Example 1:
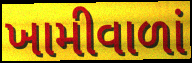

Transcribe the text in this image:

ખામીવાળાં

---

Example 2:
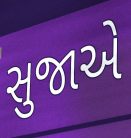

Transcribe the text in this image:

સુજાએ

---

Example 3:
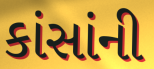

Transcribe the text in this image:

કાંસાંની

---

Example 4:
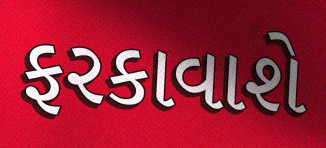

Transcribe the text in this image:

ફરકાવાશે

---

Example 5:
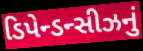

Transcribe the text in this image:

ડિપેન્ડન્સીઝનું